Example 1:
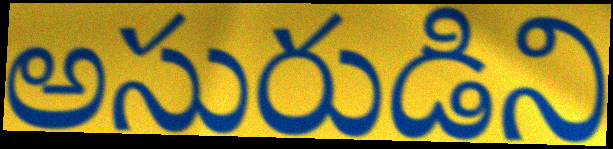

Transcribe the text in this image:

అసురుడిని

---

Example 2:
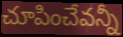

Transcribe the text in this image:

చూపించేవన్నీ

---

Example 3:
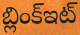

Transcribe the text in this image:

బ్లింక్ఇట్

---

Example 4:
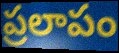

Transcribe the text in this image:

ప్రలాపం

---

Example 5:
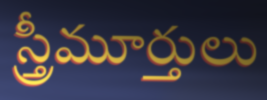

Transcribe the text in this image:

స్త్రీమూర్తులు